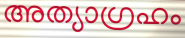
അത്യാഗ്രഹം